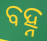
ବହ୍ନ